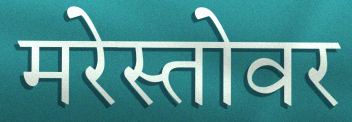
मरेस्तोवर